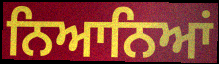
ਨਿਆਨਿਆਂ